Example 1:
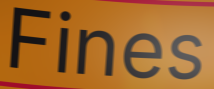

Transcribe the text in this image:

Fines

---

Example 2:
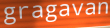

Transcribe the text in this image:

gragavan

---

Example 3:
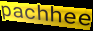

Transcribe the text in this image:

pachhee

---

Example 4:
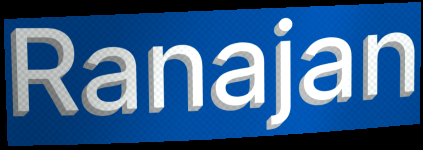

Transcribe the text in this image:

Ranajan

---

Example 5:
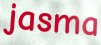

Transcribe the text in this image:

jasma